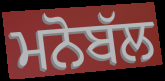
ਮਨੋਬੱਲ